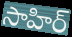
సాహిర్